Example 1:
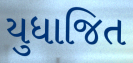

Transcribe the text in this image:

યુધાજિત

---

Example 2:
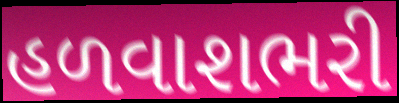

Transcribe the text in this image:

હળવાશભરી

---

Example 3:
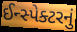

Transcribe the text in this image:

ઈન્સ્પેક્ટરનું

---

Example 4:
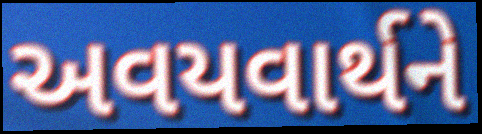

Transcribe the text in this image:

અવયવાર્થને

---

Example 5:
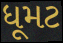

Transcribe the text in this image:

ધૂમટ